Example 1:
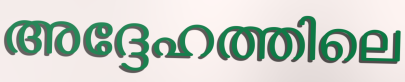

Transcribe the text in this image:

അദ്ദേഹത്തിലെ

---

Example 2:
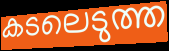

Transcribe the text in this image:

കടലെടുത്ത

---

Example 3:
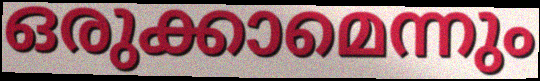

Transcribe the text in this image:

ഒരുക്കാമെന്നും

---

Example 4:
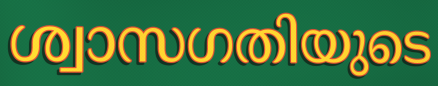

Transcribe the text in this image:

ശ്വാസഗതിയുടെ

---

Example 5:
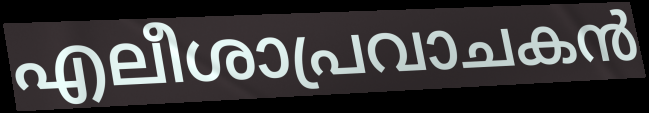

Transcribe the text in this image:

എലീശാപ്രവാചകൻ